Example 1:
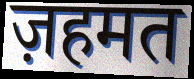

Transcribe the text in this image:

ज़हमत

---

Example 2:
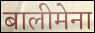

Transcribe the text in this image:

बालीमेना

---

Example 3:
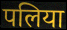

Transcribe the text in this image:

पलिया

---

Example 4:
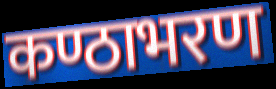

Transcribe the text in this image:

कण्ठाभरण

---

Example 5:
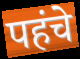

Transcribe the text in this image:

पहंचे